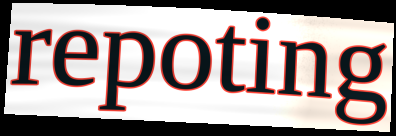
repoting